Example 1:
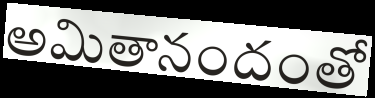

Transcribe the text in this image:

అమితానందంతో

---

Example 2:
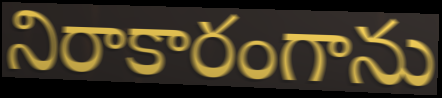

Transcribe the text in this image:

నిరాకారంగాను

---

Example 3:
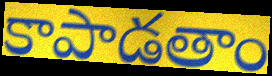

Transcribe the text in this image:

కాపాడతాం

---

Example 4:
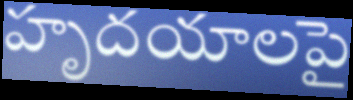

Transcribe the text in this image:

హృదయాలపై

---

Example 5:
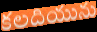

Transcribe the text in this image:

కలదియును